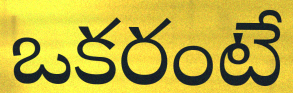
ఒకరంటే